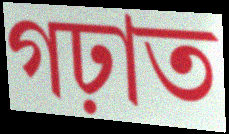
গঢ়াত